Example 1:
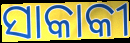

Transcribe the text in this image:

ସାକାକୀ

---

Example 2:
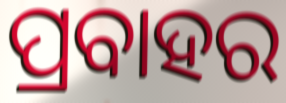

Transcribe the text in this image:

ପ୍ରବାହର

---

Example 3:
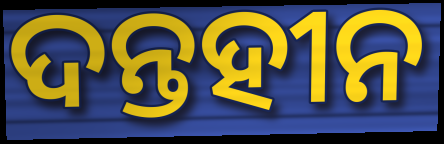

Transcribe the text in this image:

ଦନ୍ତହୀନ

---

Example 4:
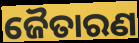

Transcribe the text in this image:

ଜୈତାରଣ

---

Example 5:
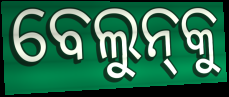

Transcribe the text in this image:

ବେଲୁନ୍‌କୁ